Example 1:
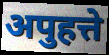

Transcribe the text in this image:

अपुहत्ते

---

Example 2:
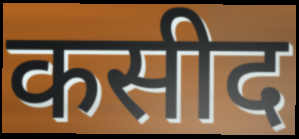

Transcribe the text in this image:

कसीद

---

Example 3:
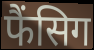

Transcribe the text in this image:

फैंसिग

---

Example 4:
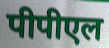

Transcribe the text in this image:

पीपीएल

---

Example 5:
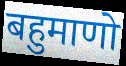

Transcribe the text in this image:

बहुमाणो